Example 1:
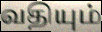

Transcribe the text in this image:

வதியும்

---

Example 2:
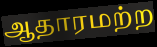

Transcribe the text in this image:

ஆதாரமற்ற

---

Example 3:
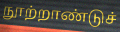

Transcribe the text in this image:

நூற்றாண்டுச்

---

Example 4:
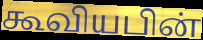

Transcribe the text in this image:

கூவியபின்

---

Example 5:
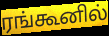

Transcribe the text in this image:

ரங்கூனில்